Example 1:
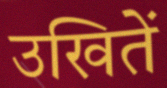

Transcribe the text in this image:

उखितें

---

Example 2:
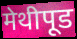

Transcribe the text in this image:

मेथीपूड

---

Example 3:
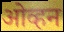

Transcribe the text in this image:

ओव्हन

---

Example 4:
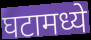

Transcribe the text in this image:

घटामध्ये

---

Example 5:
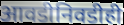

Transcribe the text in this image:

आवडीनिवडीही